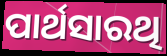
ପାର୍ଥସାରଥି